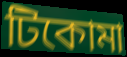
টিকোমা